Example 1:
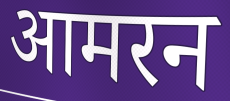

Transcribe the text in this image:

आमरन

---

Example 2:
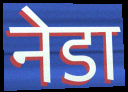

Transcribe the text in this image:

नेडा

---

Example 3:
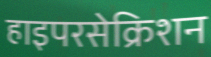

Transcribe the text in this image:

हाइपरसेक्रिशन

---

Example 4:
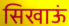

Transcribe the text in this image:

सिखाऊं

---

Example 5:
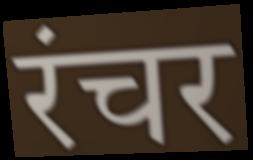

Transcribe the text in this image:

रंचर